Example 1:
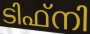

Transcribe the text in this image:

ടിഫ്നി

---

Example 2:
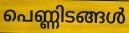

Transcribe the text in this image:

പെണ്ണിടങ്ങൾ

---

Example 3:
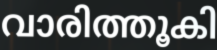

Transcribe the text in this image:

വാരിത്തൂകി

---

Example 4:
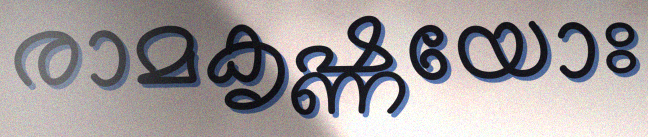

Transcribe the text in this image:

രാമകൃഷ്ണയോഃ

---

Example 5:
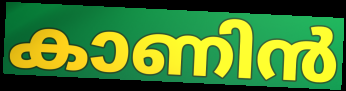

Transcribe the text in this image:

കാണിൻ